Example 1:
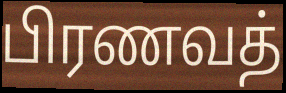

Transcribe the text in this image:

பிரணவத்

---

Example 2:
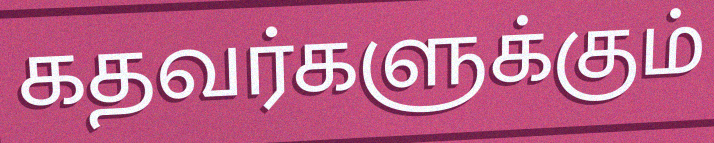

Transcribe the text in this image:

கதவர்களுக்கும்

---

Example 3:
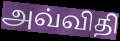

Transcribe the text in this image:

அவ்விதி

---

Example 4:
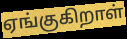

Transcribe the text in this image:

ஏங்குகிறாள்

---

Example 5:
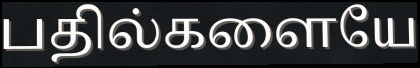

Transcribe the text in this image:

பதில்களையே